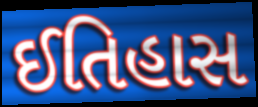
ઈતિહાસ